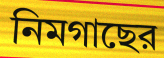
নিমগাছের